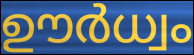
ഊർധ്വം